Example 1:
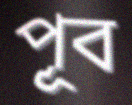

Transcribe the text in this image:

পূব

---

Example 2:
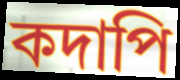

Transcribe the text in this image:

কদাপি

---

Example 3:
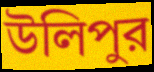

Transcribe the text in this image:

উলিপুর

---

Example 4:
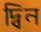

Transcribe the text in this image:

দ্বিন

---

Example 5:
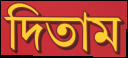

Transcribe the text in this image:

দিতাম